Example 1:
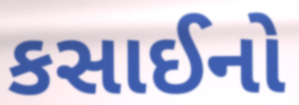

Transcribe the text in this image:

કસાઈનો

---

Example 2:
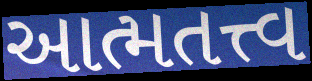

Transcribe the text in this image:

આત્મતત્ત્વ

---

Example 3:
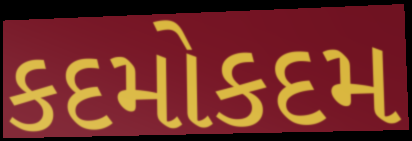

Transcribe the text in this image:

કદમોકદમ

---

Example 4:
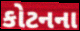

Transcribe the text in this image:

કોટનના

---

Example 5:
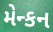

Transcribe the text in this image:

મેન્કન